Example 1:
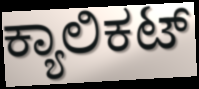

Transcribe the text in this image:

ಕ್ಯಾಲಿಕಟ್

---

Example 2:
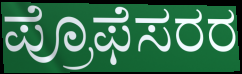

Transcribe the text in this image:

ಪ್ರೊಫೆಸರರ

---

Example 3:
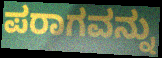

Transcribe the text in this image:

ಪರಾಗವನ್ನು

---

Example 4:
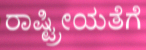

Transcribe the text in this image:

ರಾಷ್ಟ್ರೀಯತೆಗೆ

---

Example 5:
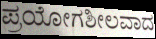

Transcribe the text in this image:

ಪ್ರಯೋಗಶೀಲವಾದ